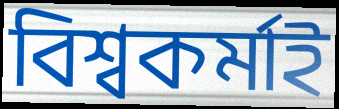
বিশ্বকৰ্মাই